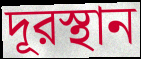
দূরস্থান